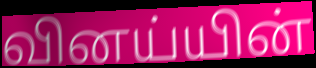
வினய்யின்